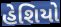
હેશિયો